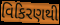
વિકિરણથી